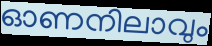
ഓണനിലാവും